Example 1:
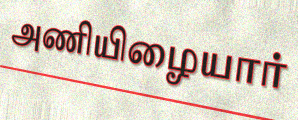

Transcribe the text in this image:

அணியிழையார்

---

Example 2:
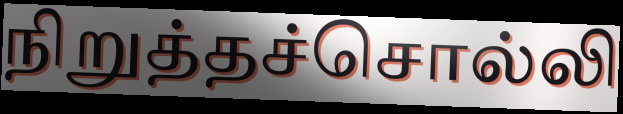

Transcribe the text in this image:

நிறுத்தச்சொல்லி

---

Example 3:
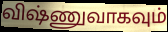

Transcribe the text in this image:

விஷ்ணுவாகவும்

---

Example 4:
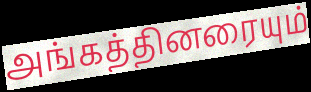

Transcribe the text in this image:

அங்கத்தினரையும்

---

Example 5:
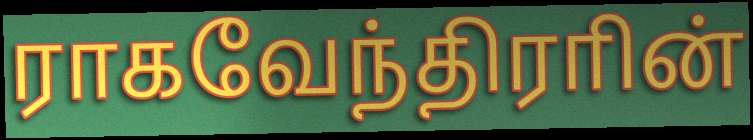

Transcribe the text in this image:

ராகவேந்திரரின்